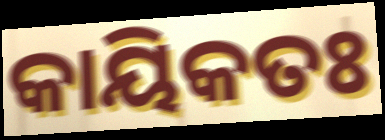
କାୟିକତଃ